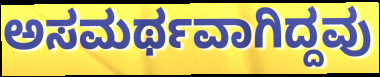
ಅಸಮರ್ಥವಾಗಿದ್ದವು